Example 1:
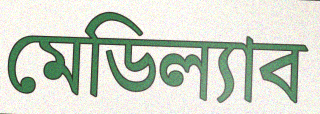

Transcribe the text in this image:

মেডিল্যাব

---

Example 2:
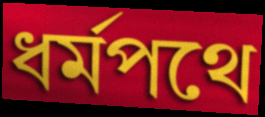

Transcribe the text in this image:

ধর্মপথে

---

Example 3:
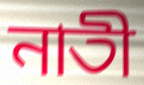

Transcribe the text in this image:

নাতী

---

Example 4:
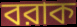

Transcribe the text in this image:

বরাক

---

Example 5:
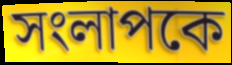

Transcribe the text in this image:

সংলাপকে